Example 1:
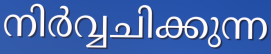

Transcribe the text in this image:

നിർവ്വചിക്കുന്ന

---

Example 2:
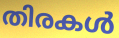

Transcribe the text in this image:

തിരകൾ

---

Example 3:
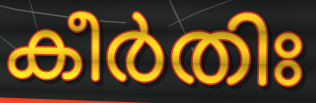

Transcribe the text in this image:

കീർതിഃ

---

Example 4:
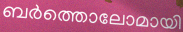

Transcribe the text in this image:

ബർത്തൊലോമായി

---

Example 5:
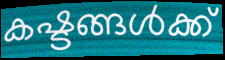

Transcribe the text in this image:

കഷ്ടങ്ങൾക്ക്